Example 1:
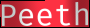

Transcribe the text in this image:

Peeth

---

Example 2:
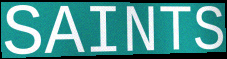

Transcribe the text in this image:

SAINTS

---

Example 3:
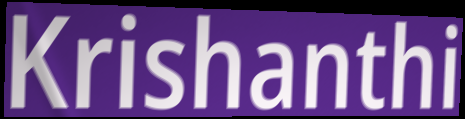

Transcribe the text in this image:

Krishanthi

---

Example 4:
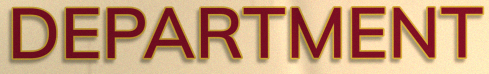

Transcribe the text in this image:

DEPARTMENT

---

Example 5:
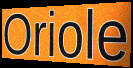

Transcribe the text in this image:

Oriole